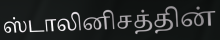
ஸ்டாலினிசத்தின்